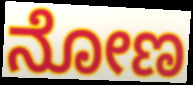
ನೋಣ